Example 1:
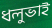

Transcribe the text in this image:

ধলুভাই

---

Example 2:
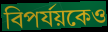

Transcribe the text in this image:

বিপর্যয়কেও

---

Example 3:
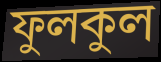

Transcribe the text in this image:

ফুলকুল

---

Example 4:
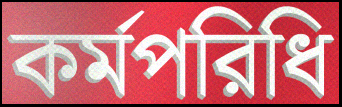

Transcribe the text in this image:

কর্মপরিধি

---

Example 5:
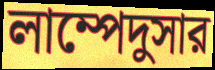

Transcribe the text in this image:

লাম্পেদুসার